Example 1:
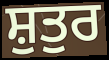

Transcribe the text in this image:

ਸ਼ੁਤੁਰ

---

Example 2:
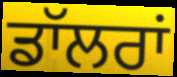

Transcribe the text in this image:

ਡਾੱਲਰਾਂ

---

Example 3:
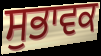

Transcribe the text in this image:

ਸੁਭਾਵਕ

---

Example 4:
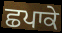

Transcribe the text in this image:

ਛਪਾਕੇ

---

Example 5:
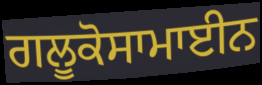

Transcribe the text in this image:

ਗਲੂਕੋਸਾਮਾਈਨ